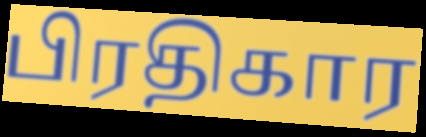
பிரதிகார